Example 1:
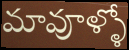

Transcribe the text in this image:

మావూళ్ళో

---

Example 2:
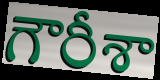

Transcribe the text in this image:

గౌరీశా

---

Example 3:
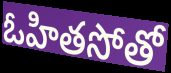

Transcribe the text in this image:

ఓహితసోతో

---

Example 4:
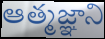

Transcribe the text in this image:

ఆత్మజ్ఞాని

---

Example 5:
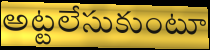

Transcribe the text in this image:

అట్టలేసుకుంటూ